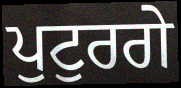
ਪੁਟੁਰਗੇ